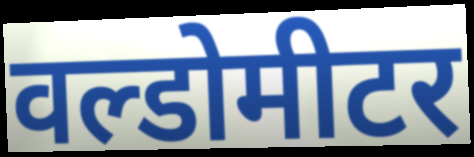
वल्डोमीटर